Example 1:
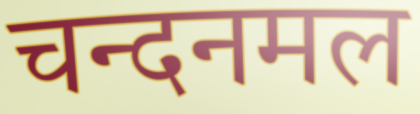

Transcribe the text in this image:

चन्दनमल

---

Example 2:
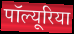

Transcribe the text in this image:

पॉल्यूरिया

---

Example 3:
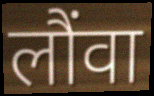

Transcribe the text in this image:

लौंवा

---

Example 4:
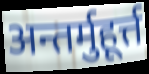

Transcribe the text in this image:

अन्तर्मुहूर्त्त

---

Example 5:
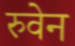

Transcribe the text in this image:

रुवेन